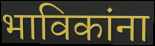
भाविकांना